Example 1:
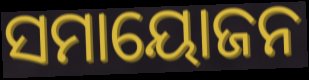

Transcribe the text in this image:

ସମାୟୋଜନ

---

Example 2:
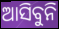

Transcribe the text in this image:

ଆସିବୁନି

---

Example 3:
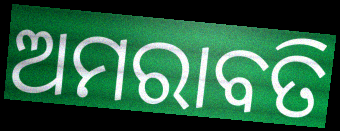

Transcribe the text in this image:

ଅମରାବତି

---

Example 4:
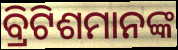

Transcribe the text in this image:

ବ୍ରିଟିଶମାନଙ୍କ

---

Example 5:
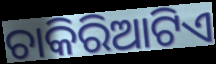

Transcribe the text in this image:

ଚାକିରିଆଟିଏ